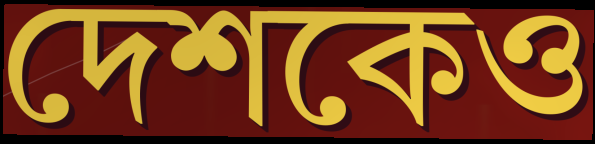
দেশকেও